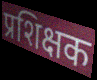
प्रशिक्षक